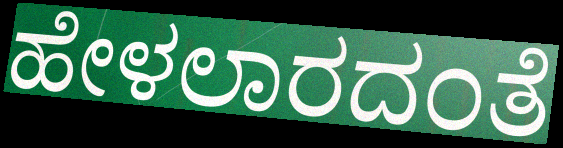
ಹೇಳಲಾರದಂತೆ